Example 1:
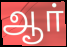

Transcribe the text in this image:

ஆர்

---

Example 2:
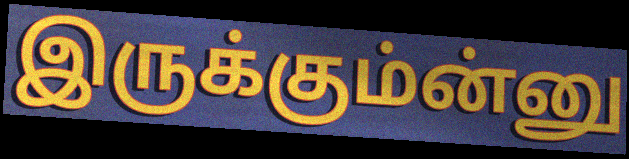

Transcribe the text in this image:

இருக்கும்ன்னு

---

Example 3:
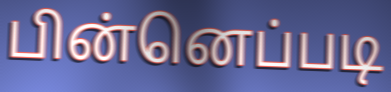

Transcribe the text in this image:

பின்னெப்படி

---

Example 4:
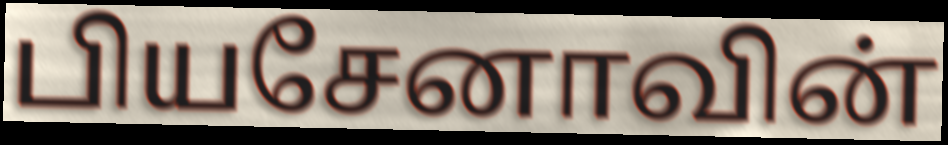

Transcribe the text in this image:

பியசேனாவின்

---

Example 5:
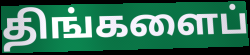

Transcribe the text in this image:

திங்களைப்